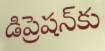
డిప్రెషన్‌కు